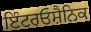
ਇੰਟਰਓਸ਼ੈਨਿਕ